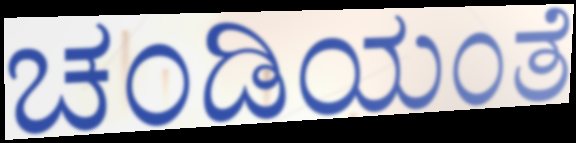
ಚಂಡಿಯಂತೆ